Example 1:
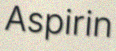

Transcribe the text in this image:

Aspirin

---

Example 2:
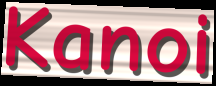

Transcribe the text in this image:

Kanoi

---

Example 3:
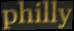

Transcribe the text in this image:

philly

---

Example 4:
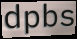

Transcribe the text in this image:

dpbs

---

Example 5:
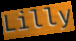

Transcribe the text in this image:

Lilly